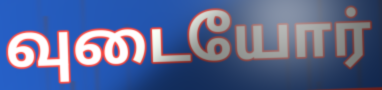
வுடையோர்